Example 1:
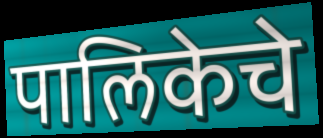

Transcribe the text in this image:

पालिकेचे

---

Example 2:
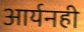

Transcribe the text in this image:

आर्यनही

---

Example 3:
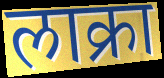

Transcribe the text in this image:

लाक्रा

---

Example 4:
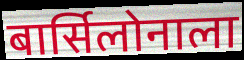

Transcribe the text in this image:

बार्सिलोनाला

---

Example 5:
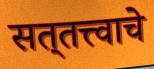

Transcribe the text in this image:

सत्‌तत्त्वाचे